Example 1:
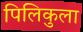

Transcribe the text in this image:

पिलिकुला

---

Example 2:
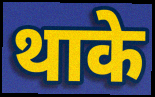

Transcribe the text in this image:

थाके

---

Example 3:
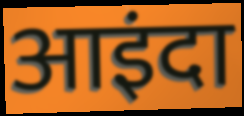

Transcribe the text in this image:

आइंदा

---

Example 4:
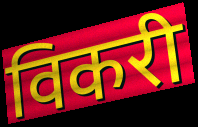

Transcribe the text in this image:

विकरी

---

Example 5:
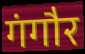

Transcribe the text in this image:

गंगौर